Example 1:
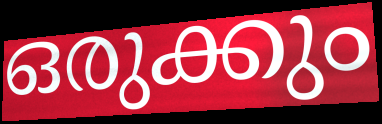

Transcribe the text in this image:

ഒരുക്കും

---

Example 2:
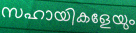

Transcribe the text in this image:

സഹായികളേയും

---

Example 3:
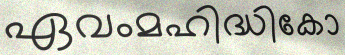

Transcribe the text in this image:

ഏവംമഹിദ്ധികോ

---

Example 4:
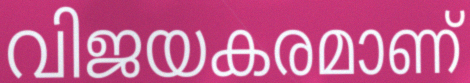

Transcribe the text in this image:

വിജയകരമാണ്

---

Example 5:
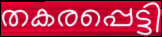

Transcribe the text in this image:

തകരപ്പെട്ടി